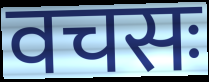
वचसः